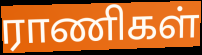
ராணிகள்